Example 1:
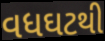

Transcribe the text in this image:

વધઘટથી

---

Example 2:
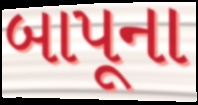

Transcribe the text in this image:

બાપૂના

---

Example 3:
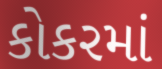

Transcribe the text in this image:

કોકરમાં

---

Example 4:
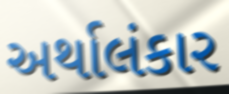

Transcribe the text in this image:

અર્થાલંકાર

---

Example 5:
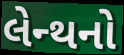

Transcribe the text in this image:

લેન્થનો